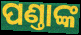
ପଣ୍ତାଙ୍କ